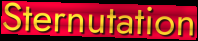
Sternutation